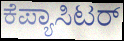
ಕೆಪ್ಯಾಸಿಟರ್